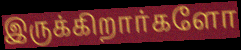
இருக்கிறார்களோ